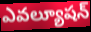
ఎవల్యూషన్